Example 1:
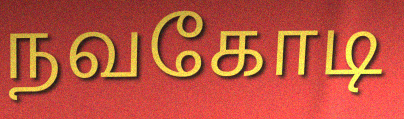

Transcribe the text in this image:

நவகோடி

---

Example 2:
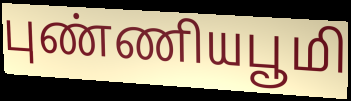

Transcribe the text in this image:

புண்ணியபூமி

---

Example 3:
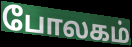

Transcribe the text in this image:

போலகம்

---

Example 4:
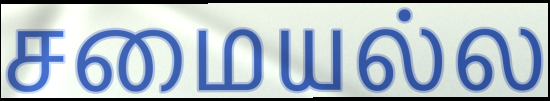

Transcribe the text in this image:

சமையல்ல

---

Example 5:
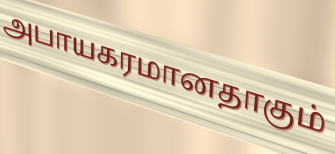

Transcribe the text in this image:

அபாயகரமானதாகும்